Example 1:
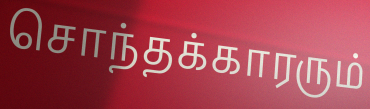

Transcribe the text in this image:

சொந்தக்காரரும்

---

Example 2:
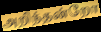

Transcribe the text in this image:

அறிந்தன்றோ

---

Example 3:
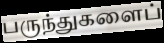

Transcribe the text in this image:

பருந்துகளைப்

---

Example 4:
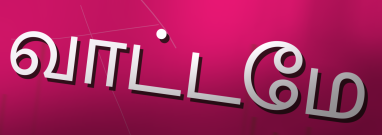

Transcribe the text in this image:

வாட்டமே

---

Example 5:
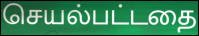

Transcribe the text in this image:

செயல்பட்டதை